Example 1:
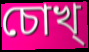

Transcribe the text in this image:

চোখ্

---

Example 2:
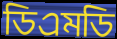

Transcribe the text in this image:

ডিএমডি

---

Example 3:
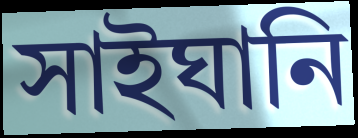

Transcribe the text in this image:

সাইঘানি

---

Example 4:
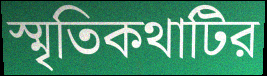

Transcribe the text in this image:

স্মৃতিকথাটির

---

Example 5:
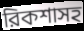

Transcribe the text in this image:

রিকশাসহ